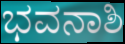
ಭವನಾಶಿ